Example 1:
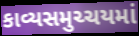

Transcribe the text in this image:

કાવ્યસમુચ્ચયમાં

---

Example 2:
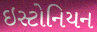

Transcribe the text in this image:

ઇસ્ટોનિયન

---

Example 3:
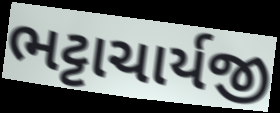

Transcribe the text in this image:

ભટ્ટાચાર્યજી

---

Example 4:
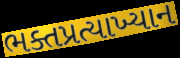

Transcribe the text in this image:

ભક્તપ્રત્યાખ્યાન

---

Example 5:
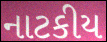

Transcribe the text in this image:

નાટકીય